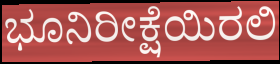
ಭೂನಿರೀಕ್ಷೆಯಿರಲಿ